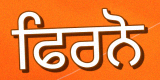
ਫਿਰਨੋ